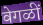
वेगळीं